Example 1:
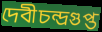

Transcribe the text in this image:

দেবীচন্দ্রগুপ্ত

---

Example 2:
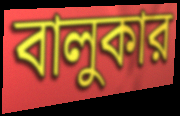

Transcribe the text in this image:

বালুকার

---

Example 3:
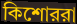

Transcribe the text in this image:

কিশোররা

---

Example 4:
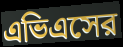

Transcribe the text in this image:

এভিএসের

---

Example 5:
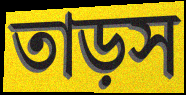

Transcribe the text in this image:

তাড়স